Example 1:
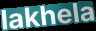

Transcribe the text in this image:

lakhela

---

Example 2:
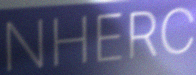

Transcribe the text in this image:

NHERC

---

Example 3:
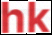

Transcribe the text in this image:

hk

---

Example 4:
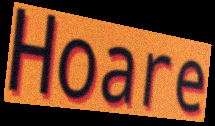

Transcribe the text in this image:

Hoare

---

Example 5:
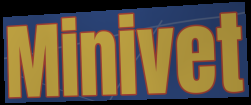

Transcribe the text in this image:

Minivet